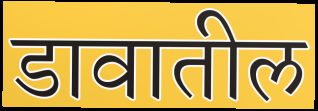
डावातील